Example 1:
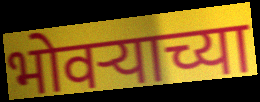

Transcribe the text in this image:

भोवऱ्याच्या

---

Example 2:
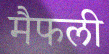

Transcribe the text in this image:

मैफली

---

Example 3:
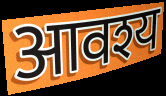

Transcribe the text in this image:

आवश्य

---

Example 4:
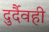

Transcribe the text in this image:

दुर्दैवही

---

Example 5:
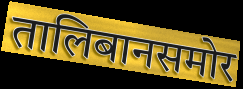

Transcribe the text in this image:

तालिबानसमोर